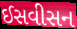
ઈસવીસન